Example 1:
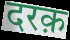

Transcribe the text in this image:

दरक़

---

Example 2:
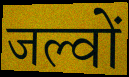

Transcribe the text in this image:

जल्वों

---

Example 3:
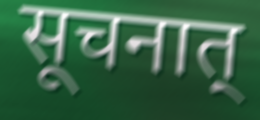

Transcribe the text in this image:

सूचनात्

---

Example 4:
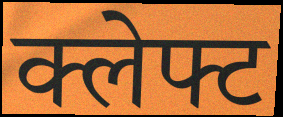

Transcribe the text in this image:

क्लेफ्ट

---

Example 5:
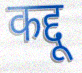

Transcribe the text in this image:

कद्दू